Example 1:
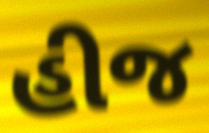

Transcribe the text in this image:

હીજ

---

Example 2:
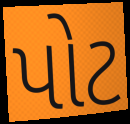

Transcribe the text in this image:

પોટ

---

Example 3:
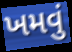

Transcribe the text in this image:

ખમવું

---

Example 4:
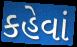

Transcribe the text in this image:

કહેવાં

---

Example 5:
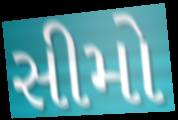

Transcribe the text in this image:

સીમો